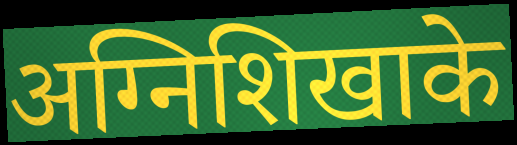
अग्निशिखाके